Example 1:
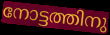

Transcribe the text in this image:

നോട്ടത്തിനു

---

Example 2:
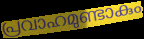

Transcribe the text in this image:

പ്രവാഹമുണ്ടാകും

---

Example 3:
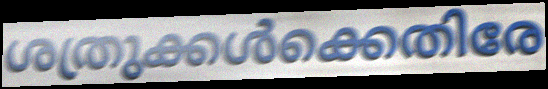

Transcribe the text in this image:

ശത്രുക്കൾക്കെതിരേ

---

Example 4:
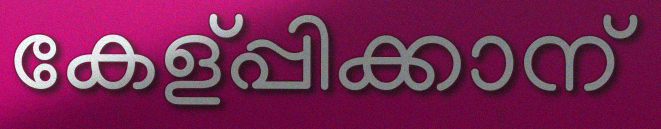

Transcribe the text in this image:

കേള്പ്പിക്കാന്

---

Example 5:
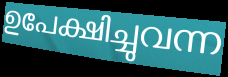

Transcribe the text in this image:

ഉപേക്ഷിച്ചുവന്ന